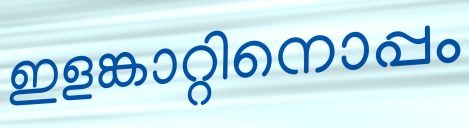
ഇളങ്കാറ്റിനൊപ്പം